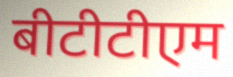
बीटीटीएम